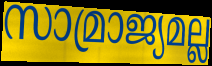
സാമ്രാജ്യമല്ല